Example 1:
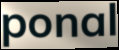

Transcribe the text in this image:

ponal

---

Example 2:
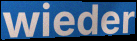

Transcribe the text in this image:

wieder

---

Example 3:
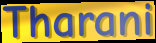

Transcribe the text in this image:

Tharani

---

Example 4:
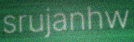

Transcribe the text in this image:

srujanhw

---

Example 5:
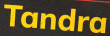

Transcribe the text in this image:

Tandra